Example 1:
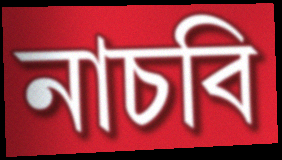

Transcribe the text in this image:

নাচবি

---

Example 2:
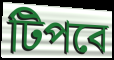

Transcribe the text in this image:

টিপবে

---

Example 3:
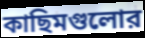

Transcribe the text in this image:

কাছিমগুলোর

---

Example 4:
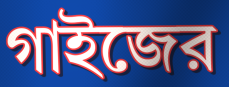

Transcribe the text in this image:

গাইজের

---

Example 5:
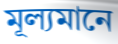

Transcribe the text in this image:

মূল্যমানে